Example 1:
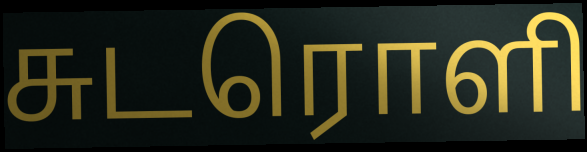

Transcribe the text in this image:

சுடரொளி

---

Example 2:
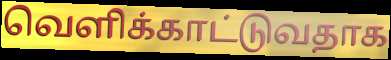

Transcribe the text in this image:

வெளிக்காட்டுவதாக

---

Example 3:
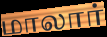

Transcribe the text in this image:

மாலார்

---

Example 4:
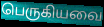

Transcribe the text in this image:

பெருகியவை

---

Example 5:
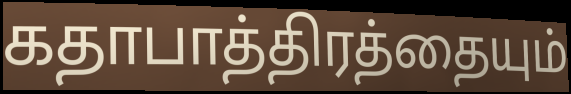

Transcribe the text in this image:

கதாபாத்திரத்தையும்